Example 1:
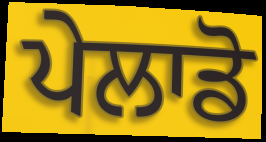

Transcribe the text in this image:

ਪੇਲਾਡੋ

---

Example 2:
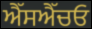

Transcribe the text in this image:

ਐੱਸਐੱਚਓ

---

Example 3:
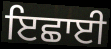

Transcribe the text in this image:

ਇਛਾਈ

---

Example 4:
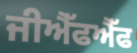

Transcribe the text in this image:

ਜੀਐੱਫਐੱਫ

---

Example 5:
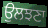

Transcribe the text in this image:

ਉਲਝਣਾ